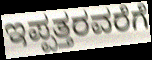
ಇಪ್ಪತ್ತರವರೆಗೆ